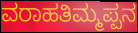
ವರಾಹತಿಮ್ಮಪ್ಪನ